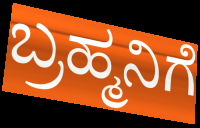
ಬ್ರಹ್ಮನಿಗೆ